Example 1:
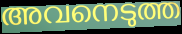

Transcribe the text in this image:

അവനെടുത്ത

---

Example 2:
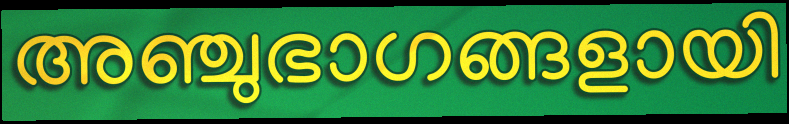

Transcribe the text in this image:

അഞ്ചുഭാഗങ്ങളായി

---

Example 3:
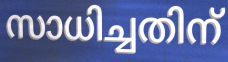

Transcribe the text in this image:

സാധിച്ചതിന്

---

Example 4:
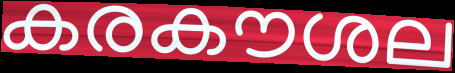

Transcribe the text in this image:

കരകൗശല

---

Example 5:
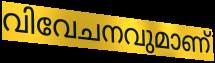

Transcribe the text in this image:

വിവേചനവുമാണ്